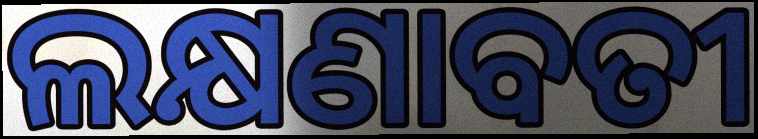
ଲକ୍ଷଣାବତୀ